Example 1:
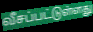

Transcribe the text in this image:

வீசப்பட்டுள்ளது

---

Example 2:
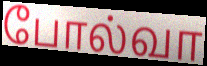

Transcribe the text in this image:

போல்வா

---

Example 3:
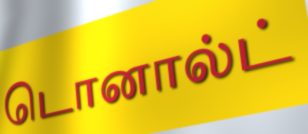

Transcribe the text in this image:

டொனால்ட்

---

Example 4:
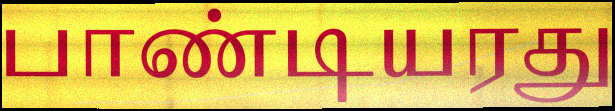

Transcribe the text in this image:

பாண்டியரது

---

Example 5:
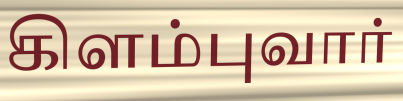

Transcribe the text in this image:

கிளம்புவார்